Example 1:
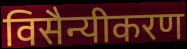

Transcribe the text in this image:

विसैन्यीकरण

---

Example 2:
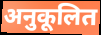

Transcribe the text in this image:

अनुकूलित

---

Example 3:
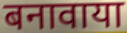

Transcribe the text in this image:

बनावाया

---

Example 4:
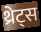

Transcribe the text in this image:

थ्रेट्स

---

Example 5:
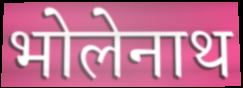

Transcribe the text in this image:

भोलेनाथ